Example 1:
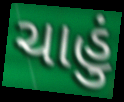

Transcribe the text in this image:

ચાહું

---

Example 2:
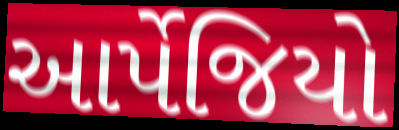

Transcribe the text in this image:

આર્પેજિયો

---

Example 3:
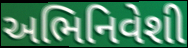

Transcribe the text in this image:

અભિનિવેશી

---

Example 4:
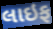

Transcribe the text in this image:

લાઇફ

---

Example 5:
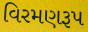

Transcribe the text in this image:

વિરમણરૂપ